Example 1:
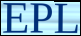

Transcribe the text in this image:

EPL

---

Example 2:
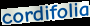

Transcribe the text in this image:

cordifolia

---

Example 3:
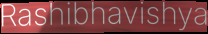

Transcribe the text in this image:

Rashibhavishya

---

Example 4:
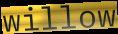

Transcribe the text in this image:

willow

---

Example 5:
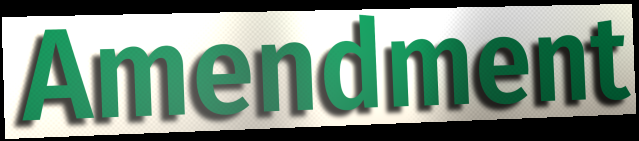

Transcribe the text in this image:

Amendment